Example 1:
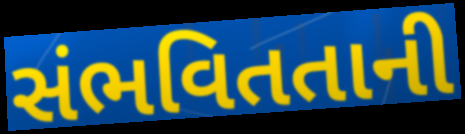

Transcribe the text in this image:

સંભવિતતાની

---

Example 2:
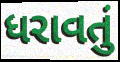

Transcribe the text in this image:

ધરાવતું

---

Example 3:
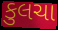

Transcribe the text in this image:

કુલચા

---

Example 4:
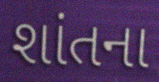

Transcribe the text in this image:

શાંતના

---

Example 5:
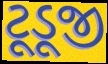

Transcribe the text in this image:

ટૂડૂજી